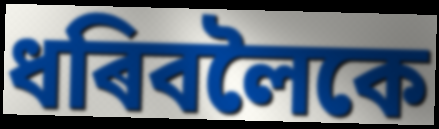
ধৰিবলৈকে